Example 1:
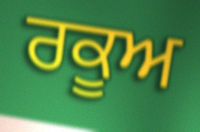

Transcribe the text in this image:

ਰਕੂਅ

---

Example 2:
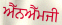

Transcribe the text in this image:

ਐੱਨਐੱਮਜੀ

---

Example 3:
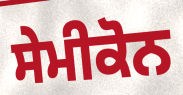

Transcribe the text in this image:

ਸੇਮੀਕੋਨ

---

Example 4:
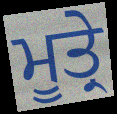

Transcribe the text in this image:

ਮੂਤ੍ਰੇ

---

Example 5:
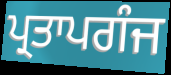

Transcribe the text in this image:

ਪ੍ਰਤਾਪਗੰਜ